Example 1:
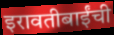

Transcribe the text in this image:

इरावतीबाईंची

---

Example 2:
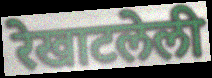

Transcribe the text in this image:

रेखाटलेली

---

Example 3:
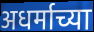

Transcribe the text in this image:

अधर्माच्या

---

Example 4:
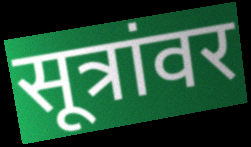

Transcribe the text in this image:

सूत्रांवर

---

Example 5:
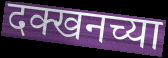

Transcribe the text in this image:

दक्खनच्या